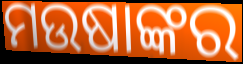
ମଉଷାଙ୍କର